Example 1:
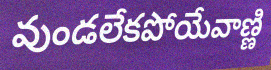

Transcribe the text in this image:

వుండలేకపోయేవాణ్ణి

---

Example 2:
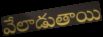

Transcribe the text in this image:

వేలాడుతాయి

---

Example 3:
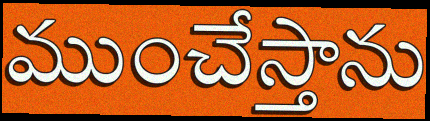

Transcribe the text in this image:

ముంచేస్తాను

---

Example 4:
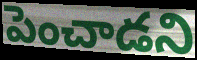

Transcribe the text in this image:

పెంచాడని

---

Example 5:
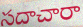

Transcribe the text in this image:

సదాచారా